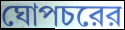
ঘোপচরের